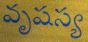
వృషస్య